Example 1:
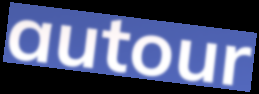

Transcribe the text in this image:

autour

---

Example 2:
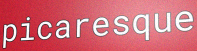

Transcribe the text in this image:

picaresque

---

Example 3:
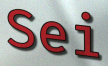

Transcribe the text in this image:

Sei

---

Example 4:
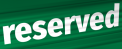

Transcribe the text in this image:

reserved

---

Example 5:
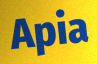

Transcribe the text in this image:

Apia